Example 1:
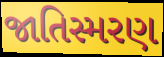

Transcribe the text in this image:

જાતિસ્મરણ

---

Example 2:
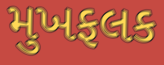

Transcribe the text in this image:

મુખફલક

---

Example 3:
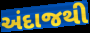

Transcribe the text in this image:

અંદાજથી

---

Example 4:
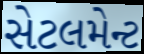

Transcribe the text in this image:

સેટલમેન્ટ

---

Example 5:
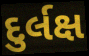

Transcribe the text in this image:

દુર્લક્ષ